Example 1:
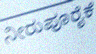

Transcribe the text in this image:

ನೀರುಪೂರೈಕೆ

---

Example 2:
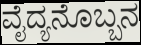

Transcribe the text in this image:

ವೈದ್ಯನೊಬ್ಬನ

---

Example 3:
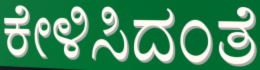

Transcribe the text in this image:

ಕೇಳಿಸಿದಂತೆ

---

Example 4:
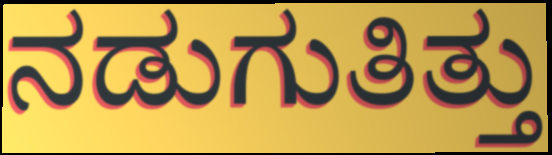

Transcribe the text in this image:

ನಡುಗುತಿತ್ತು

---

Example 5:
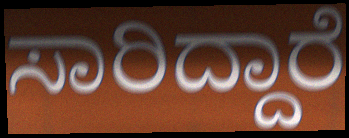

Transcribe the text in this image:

ಸಾರಿದ್ದಾರೆ